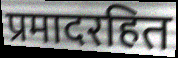
प्रमादरहित